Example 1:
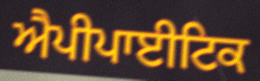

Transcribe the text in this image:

ਐਪੀਪਾਈਟਿਕ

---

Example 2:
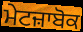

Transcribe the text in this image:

ਮੇਟਜ਼ਾਬੋਕ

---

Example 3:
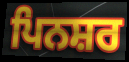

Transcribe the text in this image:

ਪਿਨਸ਼ਰ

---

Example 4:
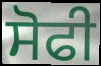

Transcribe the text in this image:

ਸੋਫੀ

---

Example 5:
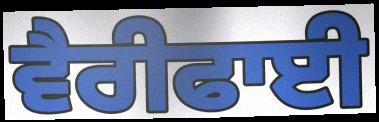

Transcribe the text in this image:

ਵੈਰੀਫਾਈ